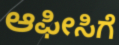
ಆಫೀಸಿಗೆ